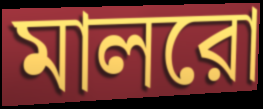
মালরো